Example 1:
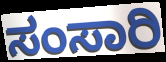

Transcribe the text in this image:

ಸಂಸಾರಿ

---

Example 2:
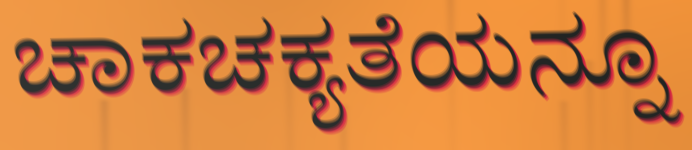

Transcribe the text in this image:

ಚಾಕಚಕ್ಯತೆಯನ್ನೂ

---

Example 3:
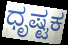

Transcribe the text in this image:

ಧೃಷ್ಟಕ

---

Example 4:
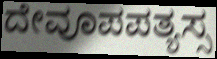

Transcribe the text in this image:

ದೇವೂಪಪತ್ಯಸ್ಸ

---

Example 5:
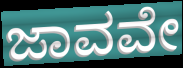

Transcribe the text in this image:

ಜಾವವೇ